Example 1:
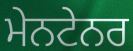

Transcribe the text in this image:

ਮੇਨਟੇਨਰ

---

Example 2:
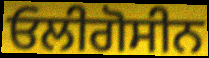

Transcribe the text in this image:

ਓਲੀਗੋਸੀਨ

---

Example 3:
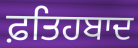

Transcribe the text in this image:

ਫ਼ਤਿਹਬਾਦ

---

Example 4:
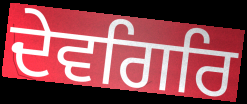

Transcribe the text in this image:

ਦੇਵਗਿਰਿ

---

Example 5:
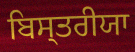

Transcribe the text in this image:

ਬਿਸ੍ਤਰੀਯਾ